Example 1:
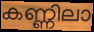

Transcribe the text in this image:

കണ്ണിലാ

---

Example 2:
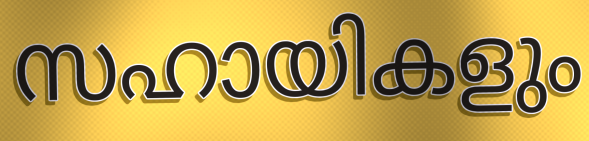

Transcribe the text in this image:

സഹായികളും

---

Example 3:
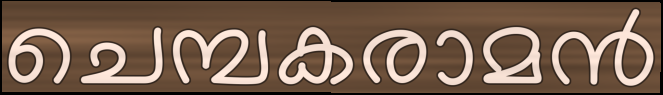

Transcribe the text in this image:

ചെമ്പകരാമൻ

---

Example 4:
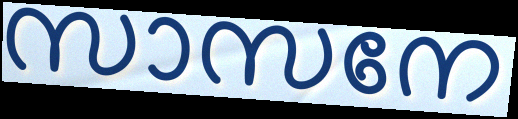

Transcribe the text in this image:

സാസനേ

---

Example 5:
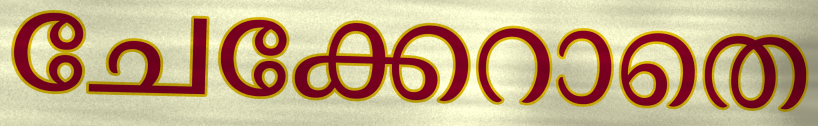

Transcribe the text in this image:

ചേക്കേറാതെ